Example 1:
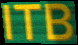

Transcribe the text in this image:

ITB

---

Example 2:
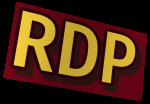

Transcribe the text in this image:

RDP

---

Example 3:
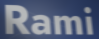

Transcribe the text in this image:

Rami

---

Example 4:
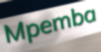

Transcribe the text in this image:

Mpemba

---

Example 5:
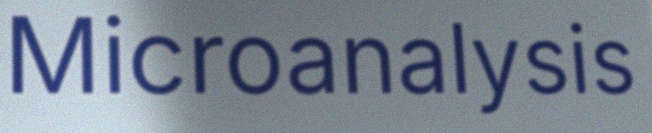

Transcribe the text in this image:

Microanalysis